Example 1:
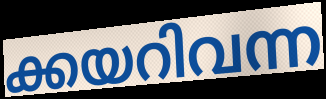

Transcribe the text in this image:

ക്കയറിവന്ന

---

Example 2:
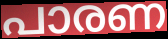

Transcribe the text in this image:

പാരണ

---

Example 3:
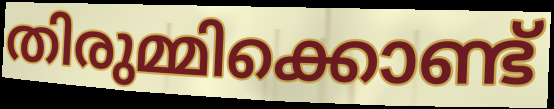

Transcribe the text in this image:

തിരുമ്മിക്കൊണ്ട്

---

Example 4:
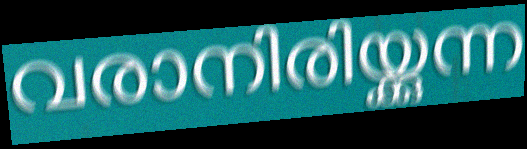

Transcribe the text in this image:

വരാനിരിയ്ക്കുന്ന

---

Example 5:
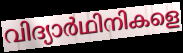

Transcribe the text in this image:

വിദ്യാർഥിനികളെ